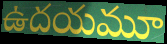
ఉదయమూ